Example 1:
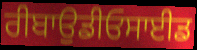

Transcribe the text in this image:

ਰੀਬਾਉਡੀਓਸਾਈਡ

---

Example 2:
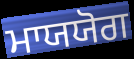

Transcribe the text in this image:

ਮਾਯਯੋਗ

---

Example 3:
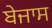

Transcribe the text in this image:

ਬੇਜਾਸ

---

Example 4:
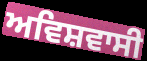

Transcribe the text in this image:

ਅਵਿਸ਼ਵਾਸੀ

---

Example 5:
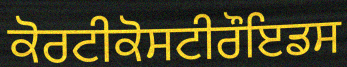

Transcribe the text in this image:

ਕੋਰਟੀਕੋਸਟੀਰੌਇਡਸ